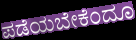
ಪಡೆಯಬೇಕೆಂದೂ